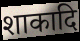
शाकादि